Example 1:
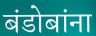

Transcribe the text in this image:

बंडोबांना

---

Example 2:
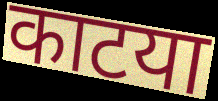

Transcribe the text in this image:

काटया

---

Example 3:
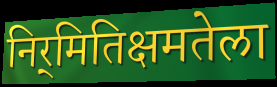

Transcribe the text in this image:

निर्मितिक्षमतेला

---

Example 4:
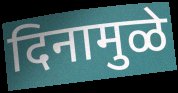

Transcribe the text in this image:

दिनामुळे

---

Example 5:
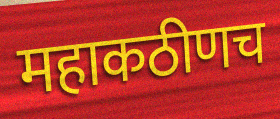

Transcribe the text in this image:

महाकठीणच